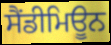
ਸੈਂਡੀਮਿਊਨ